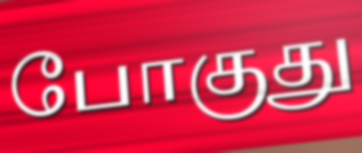
போகுது